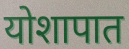
योशापात